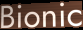
Bionic